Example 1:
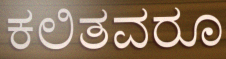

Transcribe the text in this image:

ಕಲಿತವರೂ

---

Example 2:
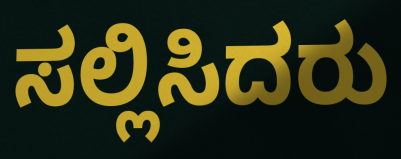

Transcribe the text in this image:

ಸಲ್ಲಿಸಿದರು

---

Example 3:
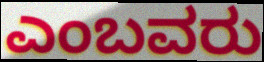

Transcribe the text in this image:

ಎಂಬವರು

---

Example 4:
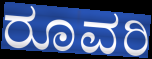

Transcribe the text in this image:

ರೂವರಿ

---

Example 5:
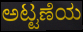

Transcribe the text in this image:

ಅಟ್ಟಣೆಯ